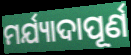
ମର୍ଯ୍ୟାଦାପୂର୍ଣ